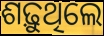
ଶଢ଼ୁଥିଲେ